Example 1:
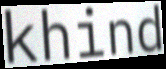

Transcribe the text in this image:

khind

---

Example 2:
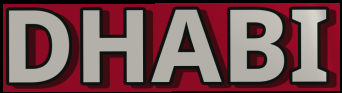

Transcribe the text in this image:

DHABI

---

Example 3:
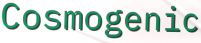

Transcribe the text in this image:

Cosmogenic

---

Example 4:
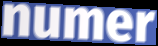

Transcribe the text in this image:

numer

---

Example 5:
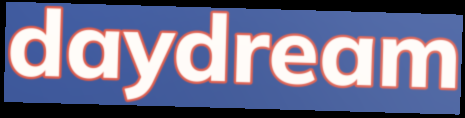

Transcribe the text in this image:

daydream